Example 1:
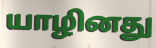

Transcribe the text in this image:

யாழினது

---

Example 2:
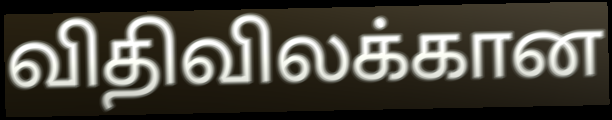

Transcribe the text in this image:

விதிவிலக்கான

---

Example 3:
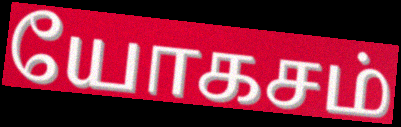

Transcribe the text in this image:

யோகசம்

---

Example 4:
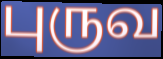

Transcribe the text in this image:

புருவ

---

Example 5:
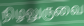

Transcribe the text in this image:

நிழலுருவை